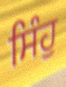
ਸਿੰਹੁ